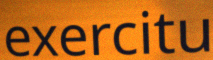
exercitu